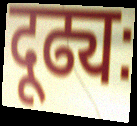
दूढ्यः